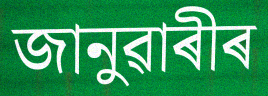
জানুৱাৰীৰ